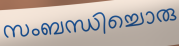
സംബന്ധിച്ചൊരു